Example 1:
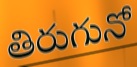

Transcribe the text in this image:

తిరుగునో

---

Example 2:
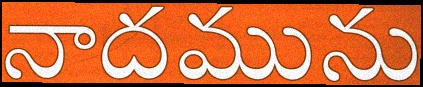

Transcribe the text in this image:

నాదమును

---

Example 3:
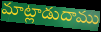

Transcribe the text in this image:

మాట్లాడుదాము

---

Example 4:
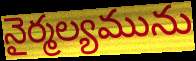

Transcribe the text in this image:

నైర్మల్యమును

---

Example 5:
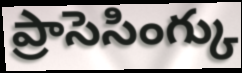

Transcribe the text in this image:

ప్రాసెసింగ్కు